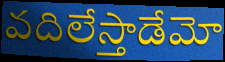
వదిలేస్తాడేమో